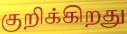
குறிக்கிறது